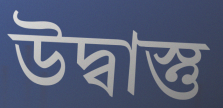
উদ্বাস্তু